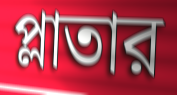
প্লাতার